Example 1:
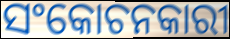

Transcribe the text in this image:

ସଂକୋଚନକାରୀ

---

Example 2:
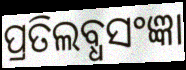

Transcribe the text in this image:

ପ୍ରତିଲବ୍ଧସଂଜ୍ଞା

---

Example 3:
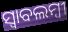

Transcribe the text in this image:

ସ୍ଵାବଲମ୍ଵୀ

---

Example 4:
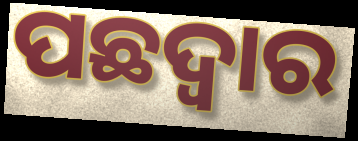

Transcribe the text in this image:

ପଛଦ୍ୱାର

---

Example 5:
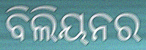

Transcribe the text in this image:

ବିଲିୟନର